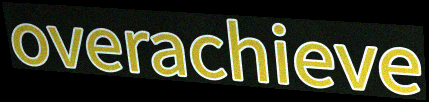
overachieve